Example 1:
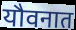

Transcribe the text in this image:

यौवनात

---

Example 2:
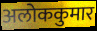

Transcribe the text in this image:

अलोककुमार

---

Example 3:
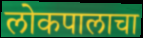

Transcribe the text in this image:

लोकपालाचा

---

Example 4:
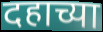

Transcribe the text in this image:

दहाच्या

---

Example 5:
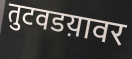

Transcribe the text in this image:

तुटवडय़ावर